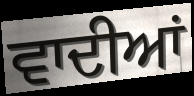
ਵਾਦੀਆਂ